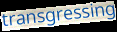
transgressing